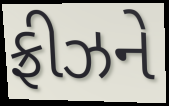
ફ્રીઝને